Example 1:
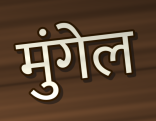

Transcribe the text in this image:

मुंगेल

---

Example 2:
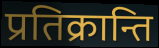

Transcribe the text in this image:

प्रतिक्रान्ति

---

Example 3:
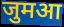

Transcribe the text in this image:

जुमआ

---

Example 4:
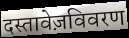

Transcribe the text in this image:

दस्तावेज़विवरण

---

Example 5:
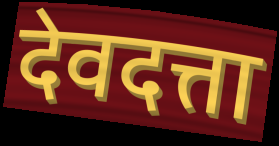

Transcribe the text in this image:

देवदत्ता